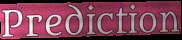
Prediction